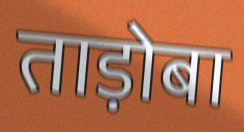
ताड़ोबा